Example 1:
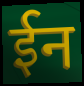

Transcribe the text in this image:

ईन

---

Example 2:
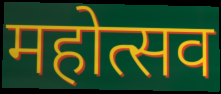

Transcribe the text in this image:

महोत्सव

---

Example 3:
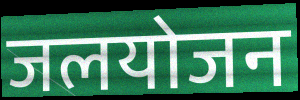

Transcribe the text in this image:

जलयोजन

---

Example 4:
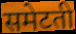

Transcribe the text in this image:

समेटती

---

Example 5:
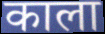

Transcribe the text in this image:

काला